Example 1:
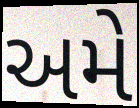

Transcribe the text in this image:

અમે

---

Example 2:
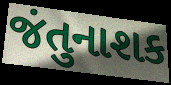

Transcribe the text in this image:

જંતુનાશક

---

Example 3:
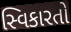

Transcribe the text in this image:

સ્વિકારતો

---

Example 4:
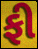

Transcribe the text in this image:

ફી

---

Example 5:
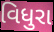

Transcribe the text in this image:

વિધુરા